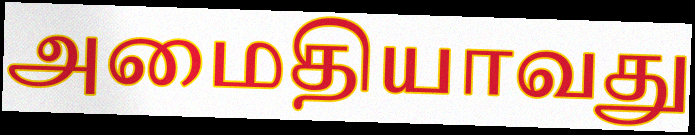
அமைதியாவது